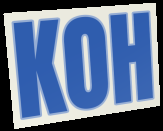
KOH